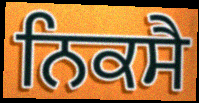
ਨਿਕਸੈ